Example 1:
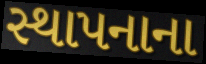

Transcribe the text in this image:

સ્થાપનાના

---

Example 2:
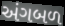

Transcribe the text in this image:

અંગબળ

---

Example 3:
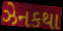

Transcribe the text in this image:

ઝેનકથા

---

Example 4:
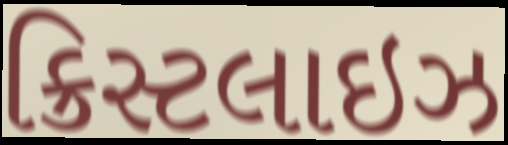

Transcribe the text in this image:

ક્રિસ્ટલાઇઝ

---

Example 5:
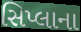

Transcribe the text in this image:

સિપ્લાના